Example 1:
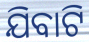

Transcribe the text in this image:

ଯିବାଟି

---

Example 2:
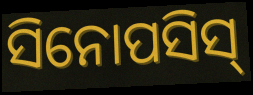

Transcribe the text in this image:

ସିନୋପସିସ୍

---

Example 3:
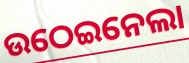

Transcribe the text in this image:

ଉଠେଇନେଲା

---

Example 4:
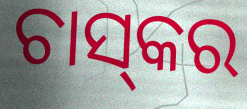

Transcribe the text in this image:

ଚାସ୍‌କର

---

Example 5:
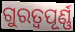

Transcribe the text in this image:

ଗୁରତ୍ୱପୂର୍ଣ୍ଣ